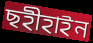
ছহীহাইন